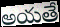
అయతే